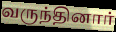
வருந்தினார்